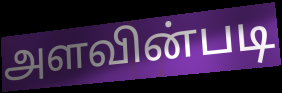
அளவின்படி